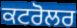
ਕਟਰੋਲਰ